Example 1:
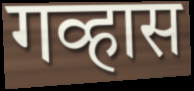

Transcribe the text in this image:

गव्हास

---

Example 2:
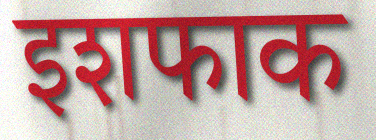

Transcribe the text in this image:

इशफाक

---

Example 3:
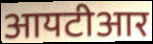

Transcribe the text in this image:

आयटीआर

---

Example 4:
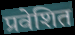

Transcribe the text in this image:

प्रवेशित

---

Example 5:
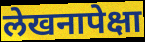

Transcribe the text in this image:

लेखनापेक्षा